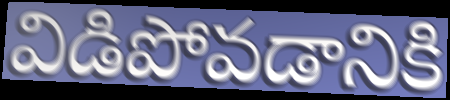
విడిపోవడానికి